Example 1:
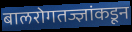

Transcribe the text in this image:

बालरोगतज्ज्ञांकडून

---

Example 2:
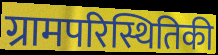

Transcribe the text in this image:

ग्रामपरिस्थितिकी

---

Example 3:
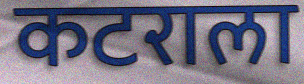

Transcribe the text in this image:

कटराला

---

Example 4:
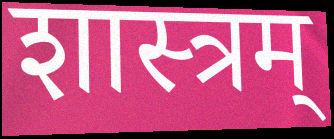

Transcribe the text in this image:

शास्त्रम्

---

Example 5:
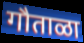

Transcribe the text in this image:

गौताळा